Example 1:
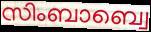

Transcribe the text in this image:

സിംബാബ്വെ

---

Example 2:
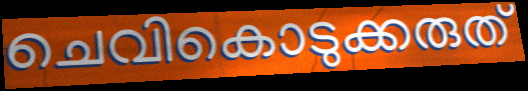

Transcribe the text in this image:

ചെവികൊടുക്കരുത്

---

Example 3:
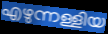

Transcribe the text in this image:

എഴുന്നള്ളിയ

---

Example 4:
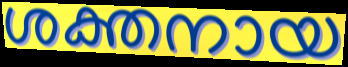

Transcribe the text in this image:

ശക്തനായ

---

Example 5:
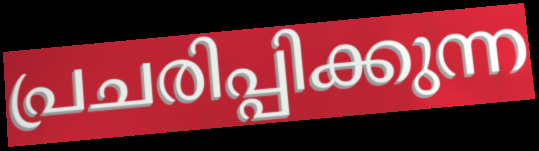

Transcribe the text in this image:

പ്രചരിപ്പിക്കുന്ന